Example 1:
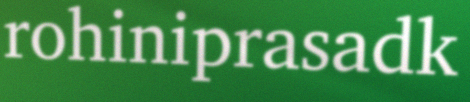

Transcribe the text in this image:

rohiniprasadk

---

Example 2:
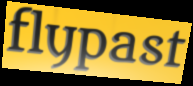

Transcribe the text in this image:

flypast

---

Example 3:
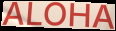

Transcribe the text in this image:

ALOHA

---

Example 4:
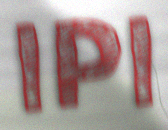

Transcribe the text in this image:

IPI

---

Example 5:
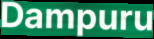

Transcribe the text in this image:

Dampuru